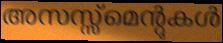
അസസ്സ്മെന്റുകൾ